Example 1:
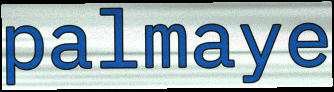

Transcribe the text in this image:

palmaye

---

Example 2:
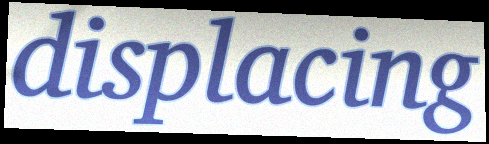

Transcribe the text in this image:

displacing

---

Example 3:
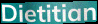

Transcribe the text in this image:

Dietitian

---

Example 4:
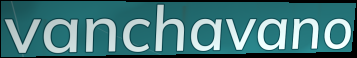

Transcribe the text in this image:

vanchavano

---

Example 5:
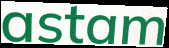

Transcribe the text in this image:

astam